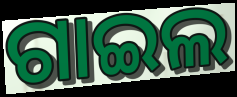
ଗାଇଲ